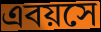
এবয়সে